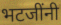
भटजींनी